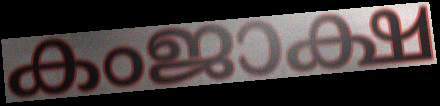
കംജാക്ഷ